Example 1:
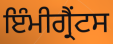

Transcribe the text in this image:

ਇੰਮੀਗ੍ਰੈਂਟਸ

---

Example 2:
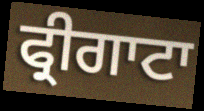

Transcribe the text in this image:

ਫ੍ਰੀਗਾਟਾ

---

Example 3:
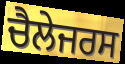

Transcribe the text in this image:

ਚੈਲੇਜਰਸ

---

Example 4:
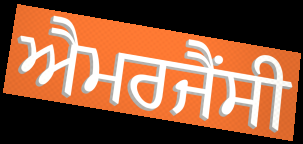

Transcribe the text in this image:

ਐਮਰਜੈਂਸੀ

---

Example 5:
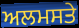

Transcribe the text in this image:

ਅਲਮਸਤੇ